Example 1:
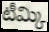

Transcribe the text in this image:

టీమ్కి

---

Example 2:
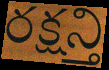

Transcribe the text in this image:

రక్షన్తి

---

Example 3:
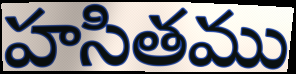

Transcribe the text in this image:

హసితము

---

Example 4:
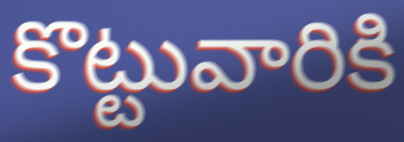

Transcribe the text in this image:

కొట్టువారికి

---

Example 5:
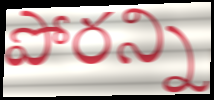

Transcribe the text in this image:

పోరన్ని